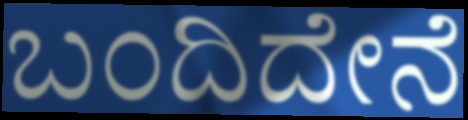
ಬಂದಿದೇನೆ